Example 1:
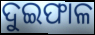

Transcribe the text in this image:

ଦୁଇଫାଳ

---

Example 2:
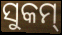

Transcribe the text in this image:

ସୁକମ୍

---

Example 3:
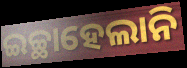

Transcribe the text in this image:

ଇଚ୍ଛାହେଲାନି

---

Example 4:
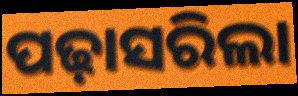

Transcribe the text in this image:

ପଢ଼ାସରିଲା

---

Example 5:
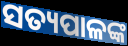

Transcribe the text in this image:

ସତ୍ୟପାଳଙ୍କ